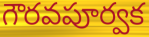
గౌరవపూర్వక